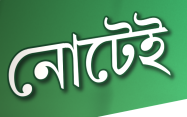
নোটেই